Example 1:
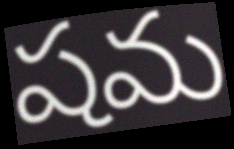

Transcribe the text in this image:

షమ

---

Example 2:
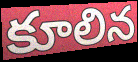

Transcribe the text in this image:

కూలిన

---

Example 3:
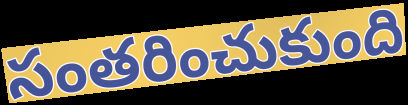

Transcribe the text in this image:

సంతరించుకుంది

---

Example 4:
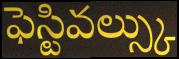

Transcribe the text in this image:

ఫెస్టివల్స్కు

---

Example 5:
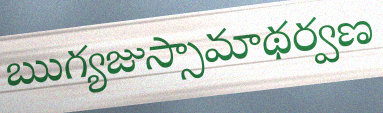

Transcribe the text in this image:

ఋగ్యజుస్సామాథర్వణ